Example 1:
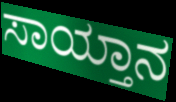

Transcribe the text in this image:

ಸಾಯ್ತಾನ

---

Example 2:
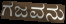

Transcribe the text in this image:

ಗಜವನು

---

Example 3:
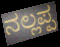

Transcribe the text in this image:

ನಲ್ಲಪ್ಪ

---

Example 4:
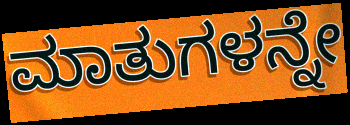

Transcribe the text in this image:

ಮಾತುಗಳನ್ನೇ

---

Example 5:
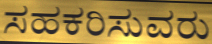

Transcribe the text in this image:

ಸಹಕರಿಸುವರು